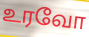
உரவோ